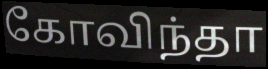
கோவிந்தா